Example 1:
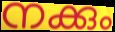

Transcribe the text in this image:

നക്കും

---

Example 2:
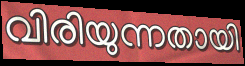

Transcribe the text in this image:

വിരിയുന്നതായി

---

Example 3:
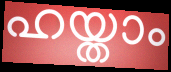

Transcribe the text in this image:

ഹയ്താം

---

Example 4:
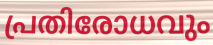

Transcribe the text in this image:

പ്രതിരോധവും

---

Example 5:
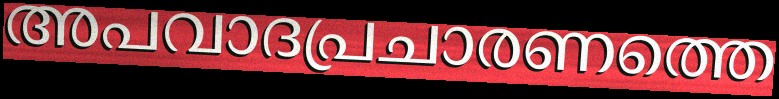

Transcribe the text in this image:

അപവാദപ്രചാരണത്തെ